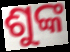
ଶୁଙ୍କ